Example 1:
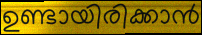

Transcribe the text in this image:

ഉണ്ടായിരിക്കാൻ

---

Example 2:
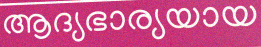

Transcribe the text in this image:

ആദ്യഭാര്യയായ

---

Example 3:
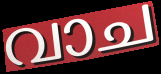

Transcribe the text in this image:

വാച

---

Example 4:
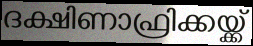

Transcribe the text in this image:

ദക്ഷിണാഫ്രിക്കയ്ക്ക്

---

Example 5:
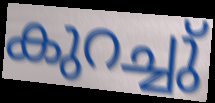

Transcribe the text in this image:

കുറച്ചു്